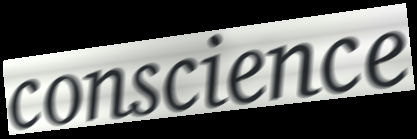
conscience